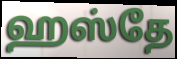
ஹஸ்தே